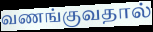
வணங்குவதால்